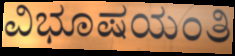
ವಿಭೂಷಯಂತಿ